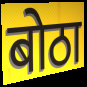
बोठा